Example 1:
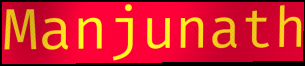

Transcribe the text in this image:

Manjunath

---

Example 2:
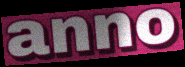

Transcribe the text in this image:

anno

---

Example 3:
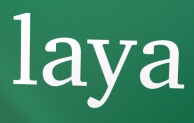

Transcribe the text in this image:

laya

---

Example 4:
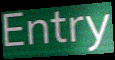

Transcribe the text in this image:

Entry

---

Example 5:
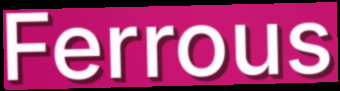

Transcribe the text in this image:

Ferrous